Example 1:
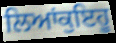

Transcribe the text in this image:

ਲਿਆਂਕੁਇਹੂ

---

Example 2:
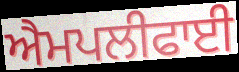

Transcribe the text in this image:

ਐਮਪਲੀਫਾਈ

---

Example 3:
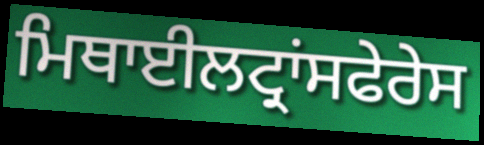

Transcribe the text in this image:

ਮਿਥਾਈਲਟ੍ਰਾਂਸਫੇਰੇਸ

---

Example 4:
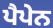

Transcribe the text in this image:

ਪੈਪੇਨ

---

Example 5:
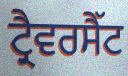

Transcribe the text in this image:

ਟ੍ਰੈਵਰਸੈੱਟ